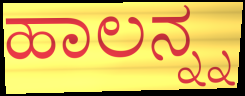
ಹಾಲನ್ನ್ನ